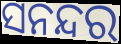
ସନନ୍ଦର